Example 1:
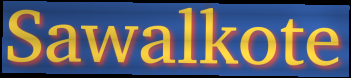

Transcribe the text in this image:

Sawalkote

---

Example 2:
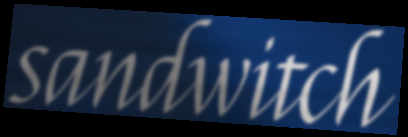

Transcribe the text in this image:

sandwitch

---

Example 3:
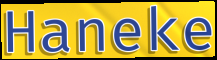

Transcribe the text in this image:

Haneke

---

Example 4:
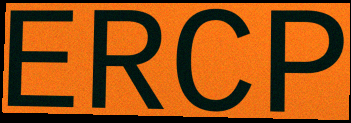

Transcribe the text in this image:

ERCP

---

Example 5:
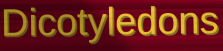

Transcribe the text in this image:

Dicotyledons